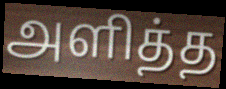
அளித்த